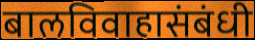
बालविवाहासंबंधी